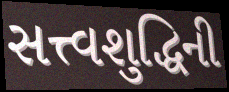
સત્ત્વશુદ્ધિની